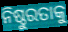
ନିଷ୍ଠୁରତାକୁ